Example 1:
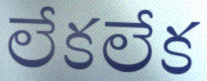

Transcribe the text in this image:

లేకలేక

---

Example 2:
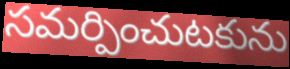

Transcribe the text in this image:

సమర్పించుటకును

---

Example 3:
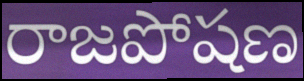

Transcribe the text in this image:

రాజపోషణ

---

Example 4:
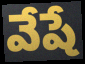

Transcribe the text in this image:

వేషే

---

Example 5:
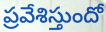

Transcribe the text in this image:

ప్రవేశిస్తుందో